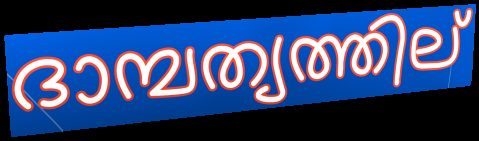
ദാമ്പത്യത്തില്